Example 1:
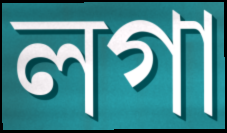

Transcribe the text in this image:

লগা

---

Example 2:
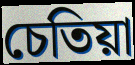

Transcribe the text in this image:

চেতিয়া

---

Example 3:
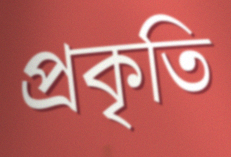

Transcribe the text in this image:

প্ৰকৃতি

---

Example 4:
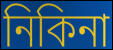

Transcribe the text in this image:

নিকিনা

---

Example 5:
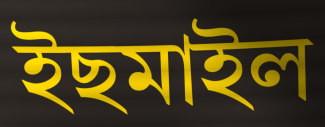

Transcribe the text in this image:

ইছমাইল